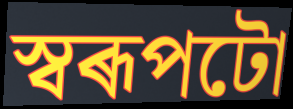
স্বৰূপটো